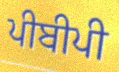
ਪੀਬੀਪੀ